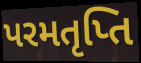
પરમતૃપ્તિ